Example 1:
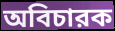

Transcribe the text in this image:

অবিচারক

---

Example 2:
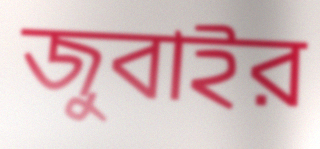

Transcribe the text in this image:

জুবাইর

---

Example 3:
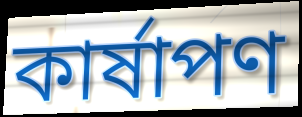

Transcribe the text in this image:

কার্ষাপণ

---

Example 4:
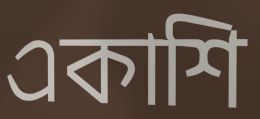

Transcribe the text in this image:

একাশি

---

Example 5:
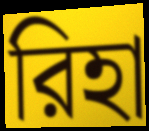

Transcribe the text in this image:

রিহা